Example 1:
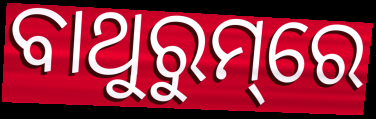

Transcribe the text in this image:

ବାଥୁରୁମ୍‌ରେ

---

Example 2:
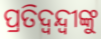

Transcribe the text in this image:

ପ୍ରତିଦ୍ଵନ୍ଦ୍ୱୀଙ୍କୁ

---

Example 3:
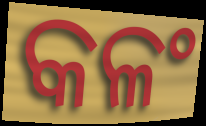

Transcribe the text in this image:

କଳଂ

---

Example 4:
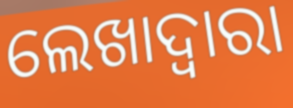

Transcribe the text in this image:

ଲେଖାଦ୍ୱାରା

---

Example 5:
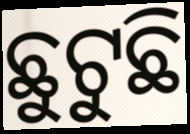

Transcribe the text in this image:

ଛୁଟୁଛି